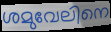
ശമുവേലിനെ